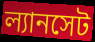
ল্যানসেট